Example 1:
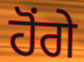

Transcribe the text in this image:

ਹੋਂਗੇ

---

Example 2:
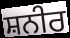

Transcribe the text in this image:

ਸ਼ਨੀਰ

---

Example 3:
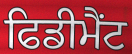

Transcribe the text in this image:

ਫਿਡੀਮੈਂਟ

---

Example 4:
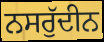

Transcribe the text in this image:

ਨਸਰੁੱਦੀਨ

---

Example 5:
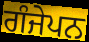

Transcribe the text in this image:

ਗੰਜੇਪਨ